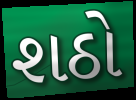
શઠો